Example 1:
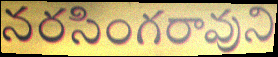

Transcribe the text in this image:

నరసింగరావుని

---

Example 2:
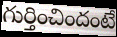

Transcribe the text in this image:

గుర్తించిందంటే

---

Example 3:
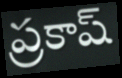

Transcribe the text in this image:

ప్రకాష్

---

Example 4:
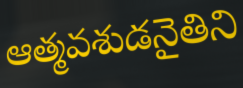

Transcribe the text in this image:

ఆత్మవశుడనైతిని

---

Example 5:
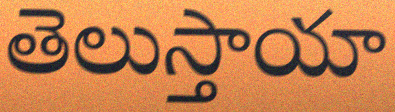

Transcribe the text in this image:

తెలుస్తాయా